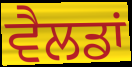
ਵੈਲਡਾਂ